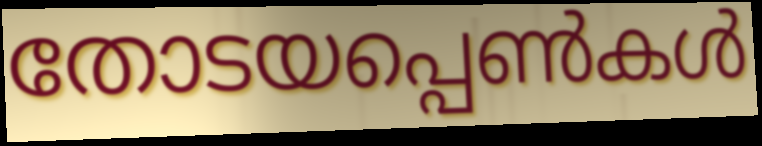
തോടയപ്പെൺകൾ